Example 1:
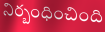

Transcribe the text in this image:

నిర్బంధించింది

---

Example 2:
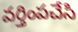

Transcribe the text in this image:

వర్తింపచేసి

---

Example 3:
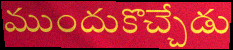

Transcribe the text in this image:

ముందుకొచ్చేడు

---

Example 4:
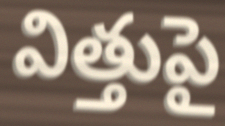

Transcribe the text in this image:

విత్తుపై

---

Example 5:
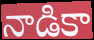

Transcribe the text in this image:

నాడికా